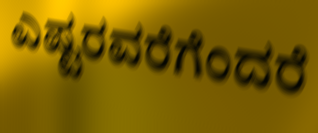
ಎಷ್ಟರವರೆಗೆಂದರೆ